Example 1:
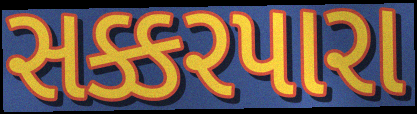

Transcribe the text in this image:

સક્કરપારા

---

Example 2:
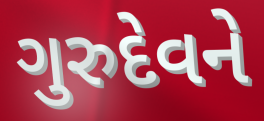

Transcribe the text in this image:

ગુરુદેવને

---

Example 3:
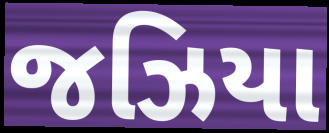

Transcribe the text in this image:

જઝિયા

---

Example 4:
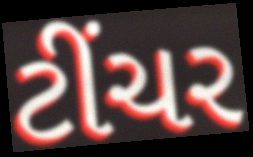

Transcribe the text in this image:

ટીંચર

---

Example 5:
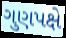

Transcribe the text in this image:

ગુણપક્ષે